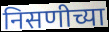
निसणीच्या